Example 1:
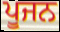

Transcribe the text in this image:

ਪੂਜਨ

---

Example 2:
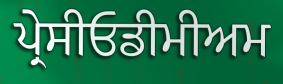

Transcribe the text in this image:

ਪ੍ਰੇਸੀਓਡੀਮੀਅਮ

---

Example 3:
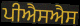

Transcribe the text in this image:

ਪੀਐਸਐਸ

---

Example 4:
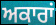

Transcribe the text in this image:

ਅਕਾਰਾਂ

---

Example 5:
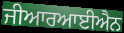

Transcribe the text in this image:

ਜੀਆਰਆਈਐਨ